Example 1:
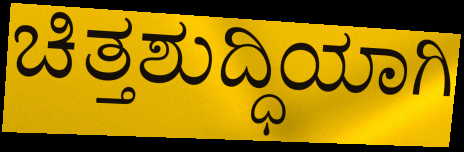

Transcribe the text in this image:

ಚಿತ್ತಶುದ್ಧಿಯಾಗಿ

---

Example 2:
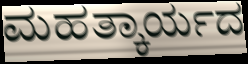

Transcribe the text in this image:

ಮಹತ್ಕಾರ್ಯದ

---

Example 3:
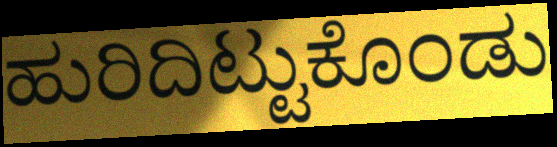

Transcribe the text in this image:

ಹುರಿದಿಟ್ಟುಕೊಂಡು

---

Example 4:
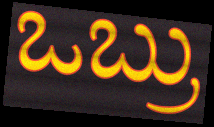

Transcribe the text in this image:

ಒಬ್ರು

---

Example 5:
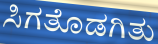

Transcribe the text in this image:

ಸಿಗತೊಡಗಿತು